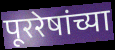
पूररेषांच्या